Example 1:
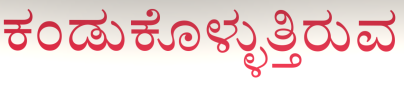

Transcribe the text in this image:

ಕಂಡುಕೊಳ್ಳುತ್ತಿರುವ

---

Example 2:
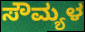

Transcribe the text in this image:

ಸೌಮ್ಯಳ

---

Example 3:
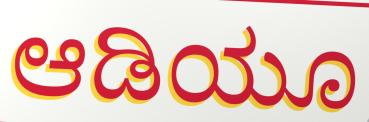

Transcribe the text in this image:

ಆಡಿಯೂ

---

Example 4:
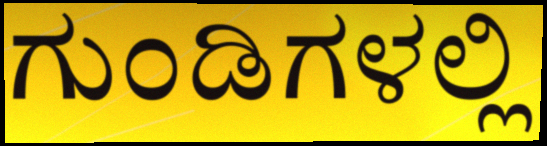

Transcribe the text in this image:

ಗುಂಡಿಗಳಲ್ಲಿ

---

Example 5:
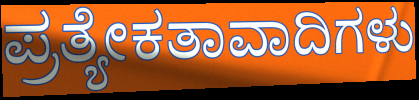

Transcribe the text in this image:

ಪ್ರತ್ಯೇಕತಾವಾದಿಗಳು